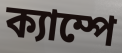
ক্যাম্পে